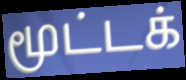
மூட்டக்